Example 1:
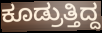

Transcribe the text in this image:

ಕೂಡ್ರುತ್ತಿದ್ದ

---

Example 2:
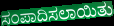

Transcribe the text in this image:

ಸಂಪಾದಿಸಲಾಯಿತು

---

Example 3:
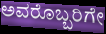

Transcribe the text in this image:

ಅವರೊಬ್ಬರಿಗೇ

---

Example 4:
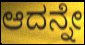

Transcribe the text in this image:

ಆದನ್ನೇ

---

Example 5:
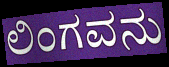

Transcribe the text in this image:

ಲಿಂಗವನು